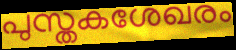
പുസ്തകശേഖരം